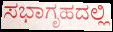
ಸಭಾಗೃಹದಲ್ಲಿ